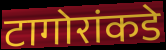
टागोरांकडे